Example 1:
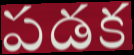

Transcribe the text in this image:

పడక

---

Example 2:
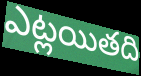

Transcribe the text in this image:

ఎట్లయితది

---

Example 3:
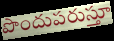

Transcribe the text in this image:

పొందుపరుస్తూ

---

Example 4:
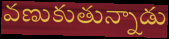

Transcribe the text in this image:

వణుకుతున్నాడు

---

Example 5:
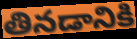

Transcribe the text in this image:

తినడానికి